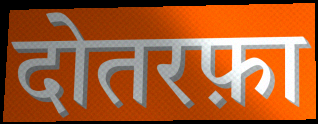
दोतरफ़ा